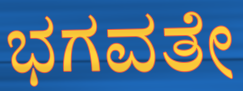
ಭಗವತೇ